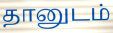
தானுடம்